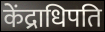
केंद्राधिपति